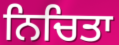
ਨਿਚਿਤਾ